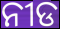
ନୀଡ